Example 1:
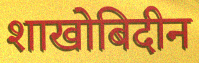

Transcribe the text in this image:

शाखोबिदीन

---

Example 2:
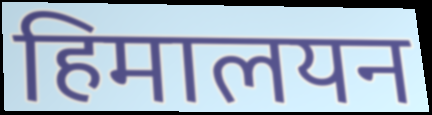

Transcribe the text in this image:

हिमालयन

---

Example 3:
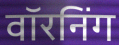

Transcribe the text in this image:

वॉरनिंग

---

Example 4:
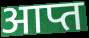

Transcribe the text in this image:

आप्त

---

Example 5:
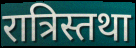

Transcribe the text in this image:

रात्रिस्तथा